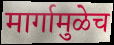
मार्गामुळेच